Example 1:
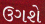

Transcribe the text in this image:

ઉગશે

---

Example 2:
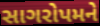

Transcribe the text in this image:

સાગરોપમને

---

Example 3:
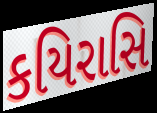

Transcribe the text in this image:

કયિરાસિ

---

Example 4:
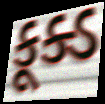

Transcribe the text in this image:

કૂક્ડ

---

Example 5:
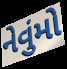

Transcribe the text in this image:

નેવુંમો